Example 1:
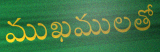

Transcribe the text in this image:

ముఖములతో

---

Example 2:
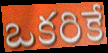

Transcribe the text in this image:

ఒకరికే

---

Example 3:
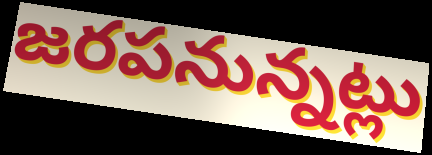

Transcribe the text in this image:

జరపనున్నట్లు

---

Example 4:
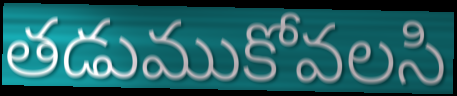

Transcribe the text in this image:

తడుముకోవలసి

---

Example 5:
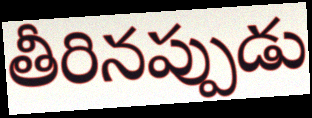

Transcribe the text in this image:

తీరినప్పుడు